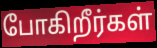
போகிறீர்கள்